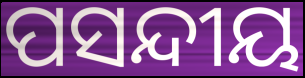
ପସନ୍ଦୀୟ